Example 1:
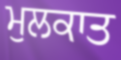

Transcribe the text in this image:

ਮੁਲਕਾਤ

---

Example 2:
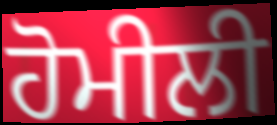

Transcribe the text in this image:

ਹੋਮੀਲੀ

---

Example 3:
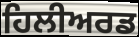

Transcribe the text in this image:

ਹਿਲੀਅਰਡ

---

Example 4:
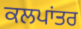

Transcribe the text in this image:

ਕਲਪਾਂਤਰ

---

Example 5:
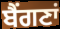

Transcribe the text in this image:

ਬੈਂਗਣਾਂ